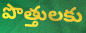
పొత్తులకు